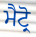
ਮੈਟ੍ਰੋ